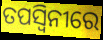
ତପସ୍ଵିନୀରେ